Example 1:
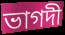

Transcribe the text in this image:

ভাগদী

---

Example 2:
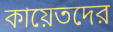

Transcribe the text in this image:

কায়েতদের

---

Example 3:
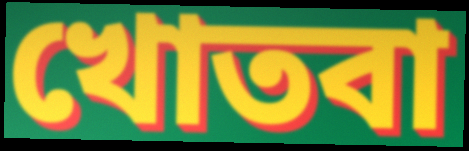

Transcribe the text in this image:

খোতবা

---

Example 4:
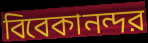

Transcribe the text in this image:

বিবেকানন্দর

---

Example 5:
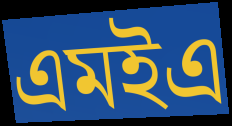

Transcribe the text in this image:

এমইএ